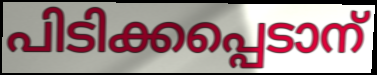
പിടിക്കപ്പെടാന്